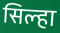
सिल्हा